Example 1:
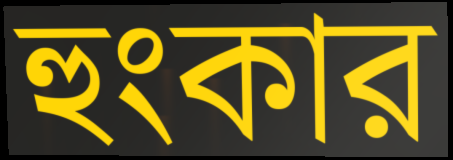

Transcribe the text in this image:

হুংকার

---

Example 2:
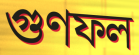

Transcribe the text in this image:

গুণফল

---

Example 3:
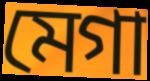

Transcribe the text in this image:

মেগা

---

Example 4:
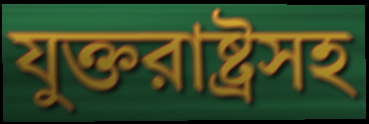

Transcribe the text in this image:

যুক্তরাষ্ট্রসহ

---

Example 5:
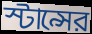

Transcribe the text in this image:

স্টান্সের